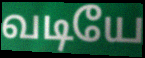
வடியே